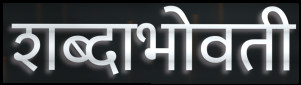
शब्दाभोवती